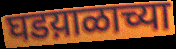
घडय़ाळाच्या